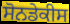
ਸੋਨਡੇਕੀਸ